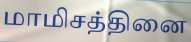
மாமிசத்தினை